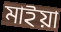
মাইয়া